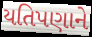
યતિપણાને